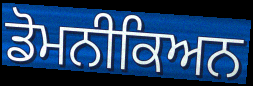
ਡੋਮਨੀਕਿਅਨ